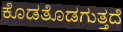
ಕೊಡತೊಡಗುತ್ತದೆ